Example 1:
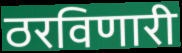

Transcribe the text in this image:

ठरविणारी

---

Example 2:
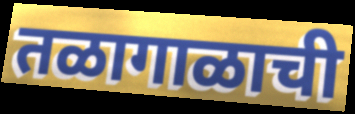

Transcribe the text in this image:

तळागाळाची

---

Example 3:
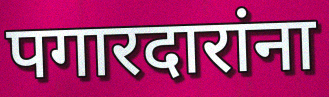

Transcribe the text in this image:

पगारदारांना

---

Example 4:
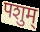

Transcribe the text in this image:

पशुम्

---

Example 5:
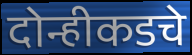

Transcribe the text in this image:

दोन्हीकडचे